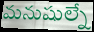
మనుషుల్నే